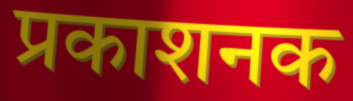
प्रकाशनक